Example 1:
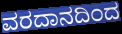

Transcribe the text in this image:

ವರದಾನದಿಂದ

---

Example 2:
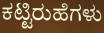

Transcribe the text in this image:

ಕಟ್ಟಿರುಹೆಗಳು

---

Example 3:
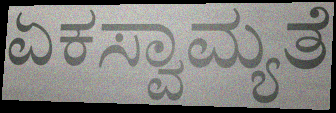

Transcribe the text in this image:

ಏಕಸ್ವಾಮ್ಯತೆ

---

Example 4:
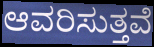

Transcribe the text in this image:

ಆವರಿಸುತ್ತವೆ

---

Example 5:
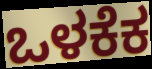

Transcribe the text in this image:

ಒಳಕೆಕ